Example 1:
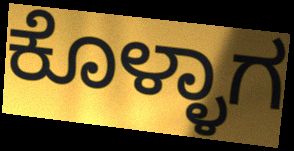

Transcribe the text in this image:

ಕೊಳ್ಳಾಗ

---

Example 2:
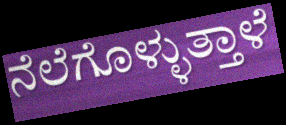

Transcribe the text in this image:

ನೆಲೆಗೊಳ್ಳುತ್ತಾಳೆ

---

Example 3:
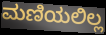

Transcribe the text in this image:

ಮಣಿಯಲಿಲ್ಲ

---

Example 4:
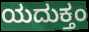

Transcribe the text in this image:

ಯದುಕ್ತಂ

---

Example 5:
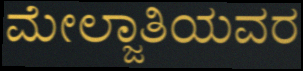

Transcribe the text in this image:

ಮೇಲ್ಜಾತಿಯವರ